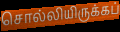
சொல்லியிருக்கப்